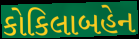
કોકિલાબહેન